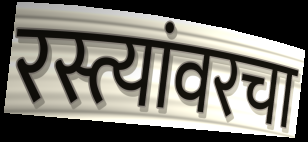
रस्त्यांवरचा